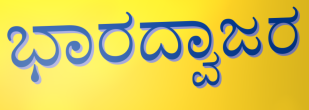
ಭಾರದ್ವಾಜರ